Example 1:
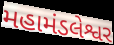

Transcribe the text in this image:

મહામંડલેશ્વર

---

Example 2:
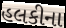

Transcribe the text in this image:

હલકીના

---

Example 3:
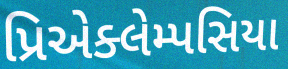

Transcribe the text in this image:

પ્રિએક્લેમ્પસિયા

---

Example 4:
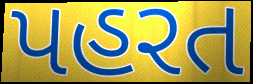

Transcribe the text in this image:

પહરત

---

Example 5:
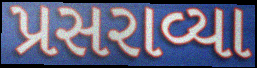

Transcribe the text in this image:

પ્રસરાવ્યા